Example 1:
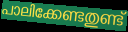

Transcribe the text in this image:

പാലിക്കേണ്ടതുണ്ട്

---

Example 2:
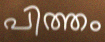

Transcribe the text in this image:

പിത്തം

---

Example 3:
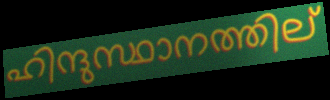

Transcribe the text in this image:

ഹിന്ദുസ്ഥാനത്തില്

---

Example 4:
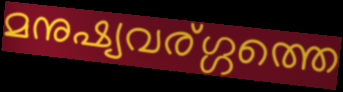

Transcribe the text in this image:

മനുഷ്യവര്ഗ്ഗത്തെ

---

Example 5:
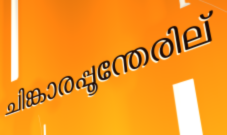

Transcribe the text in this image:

ചിങ്കാരപ്പൂന്തേരില്